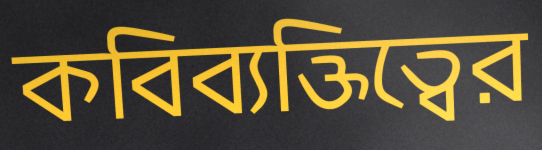
কবিব্যক্তিত্বের